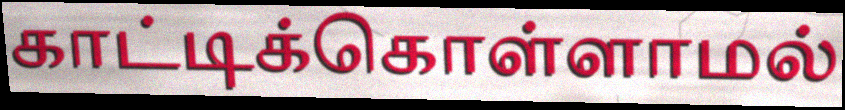
காட்டிக்கொள்ளாமல்